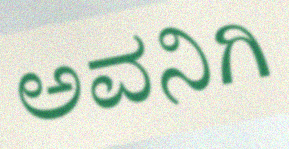
ಅವನಿಗಿ